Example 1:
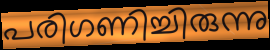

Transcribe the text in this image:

പരിഗണിച്ചിരുന്നു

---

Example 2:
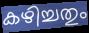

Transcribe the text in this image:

കഴിച്ചതും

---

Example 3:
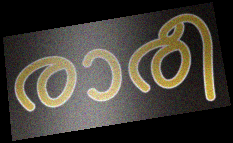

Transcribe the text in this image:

രാരീ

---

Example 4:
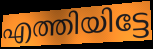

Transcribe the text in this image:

എത്തിയിട്ടേ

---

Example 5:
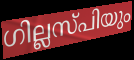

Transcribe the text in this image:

ഗില്ലസ്പിയും